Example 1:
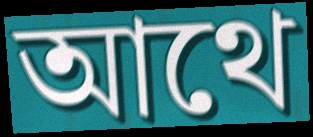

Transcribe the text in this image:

আথে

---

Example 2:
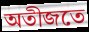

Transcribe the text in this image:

অতীজতে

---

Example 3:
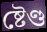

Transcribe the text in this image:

ষ্টেণ্ড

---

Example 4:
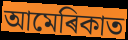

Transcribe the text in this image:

আমেৰিকাত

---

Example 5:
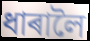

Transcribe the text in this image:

ধাৰালৈ